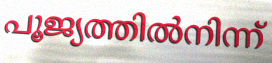
പൂജ്യത്തിൽനിന്ന്